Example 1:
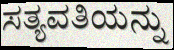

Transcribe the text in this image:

ಸತ್ಯವತಿಯನ್ನು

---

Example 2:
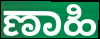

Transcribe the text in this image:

ಣಾಹಿ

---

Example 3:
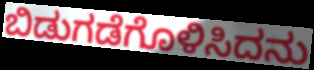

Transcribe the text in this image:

ಬಿಡುಗಡೆಗೊಳಿಸಿದನು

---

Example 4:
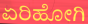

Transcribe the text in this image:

ಏರಿಹೋಗಿ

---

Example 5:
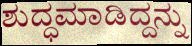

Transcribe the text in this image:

ಶುದ್ಧಮಾಡಿದ್ದನ್ನು